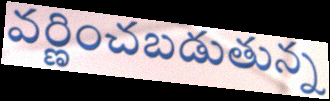
వర్ణించబడుతున్న